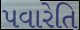
પવારેતિ